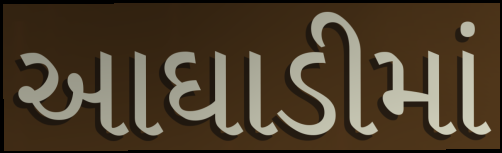
આઘાડીમાં